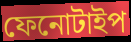
ফেনোটাইপ